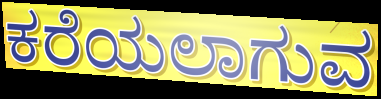
ಕರೆಯಲಾಗುವ